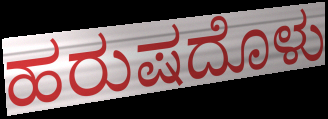
ಹರುಷದೊಳು